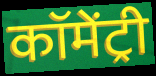
कॉमेंट्री